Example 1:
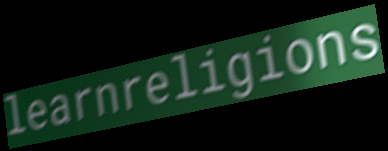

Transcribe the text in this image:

learnreligions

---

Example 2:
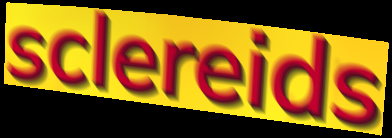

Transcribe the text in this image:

sclereids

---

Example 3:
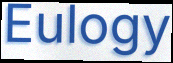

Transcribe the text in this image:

Eulogy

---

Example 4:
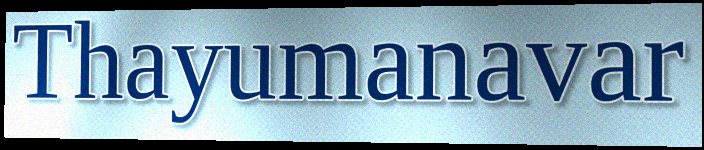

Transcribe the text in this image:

Thayumanavar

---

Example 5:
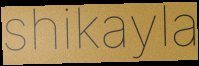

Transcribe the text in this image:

shikayla